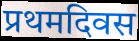
प्रथमदिवस